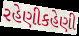
રહેણીકહેણી